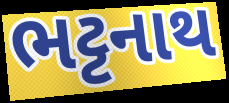
ભટ્ટનાથ